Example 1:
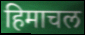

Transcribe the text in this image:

हिमाचल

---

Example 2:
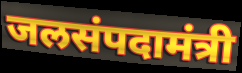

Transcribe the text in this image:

जलसंपदामंत्री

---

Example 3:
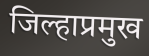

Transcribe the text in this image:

जिल्हाप्रमुख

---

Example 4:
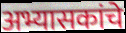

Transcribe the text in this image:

अभ्यासकांचे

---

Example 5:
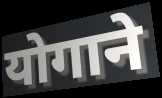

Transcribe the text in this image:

योगाने